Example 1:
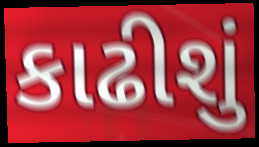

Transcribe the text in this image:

કાઢીશું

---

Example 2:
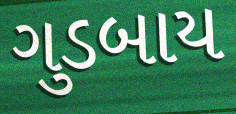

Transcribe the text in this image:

ગુડબાય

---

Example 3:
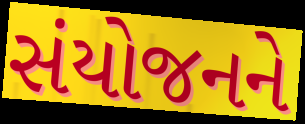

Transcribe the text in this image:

સંયોજનને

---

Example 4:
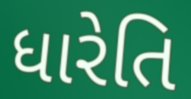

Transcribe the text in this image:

ધારેતિ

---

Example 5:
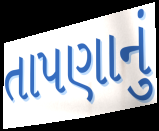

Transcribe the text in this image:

તાપણાનું